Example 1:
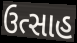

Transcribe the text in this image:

ઉત્સાહ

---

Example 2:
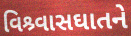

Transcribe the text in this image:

વિશ્ર્વાસઘાતને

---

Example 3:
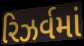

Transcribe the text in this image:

રિઝર્વમાં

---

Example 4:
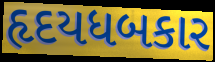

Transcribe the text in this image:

હૃદયધબકાર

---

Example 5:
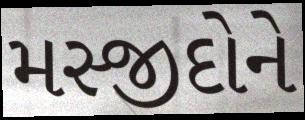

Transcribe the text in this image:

મસ્જીદોને